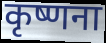
कृष्णना